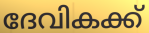
ദേവികക്ക്